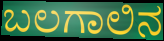
ಬಲಗಾಲಿನ